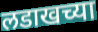
लडाखच्या